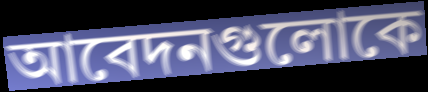
আবেদনগুলোকে